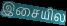
இசையில